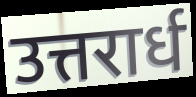
उत्तरार्ध